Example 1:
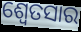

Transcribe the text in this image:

ଶ୍ଵେତସାର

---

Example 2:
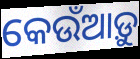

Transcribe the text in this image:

କେଉଁଆଡ଼ୁ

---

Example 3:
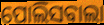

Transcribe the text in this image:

ପୋଲିସବାଲା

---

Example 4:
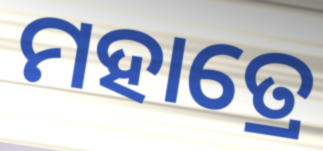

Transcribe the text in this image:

ମହାତ୍ରେ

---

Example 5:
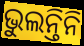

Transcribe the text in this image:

ଭୁଲନ୍ତିନି